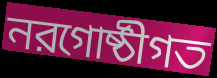
নরগোষ্ঠীগত